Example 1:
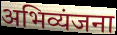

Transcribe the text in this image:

अभिव्यंजना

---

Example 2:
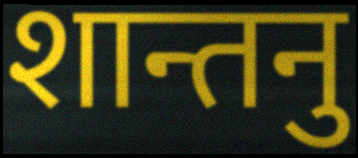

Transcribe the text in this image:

शान्तनु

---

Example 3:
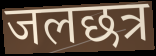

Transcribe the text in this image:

जलछत्र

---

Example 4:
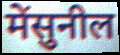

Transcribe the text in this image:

मेंसुनील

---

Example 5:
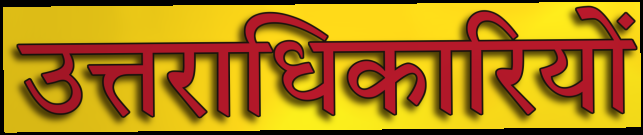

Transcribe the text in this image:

उत्तराधिकारियों